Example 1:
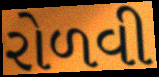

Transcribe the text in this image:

રોળવી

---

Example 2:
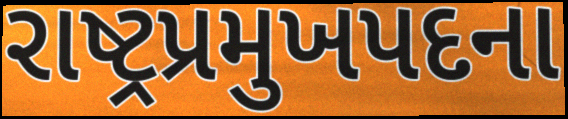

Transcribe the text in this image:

રાષ્ટ્રપ્રમુખપદના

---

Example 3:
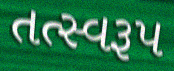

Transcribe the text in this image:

તત્સ્વરૂપ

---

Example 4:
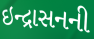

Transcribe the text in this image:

ઇન્દ્રાસનની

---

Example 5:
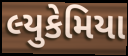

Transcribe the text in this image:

લ્યુકેમિયા